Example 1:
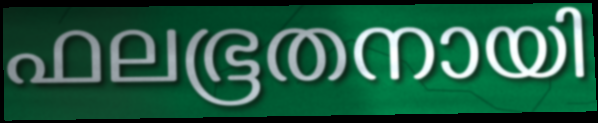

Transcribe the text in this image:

ഫലഭൂതനായി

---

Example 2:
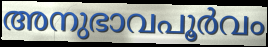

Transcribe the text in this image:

അനുഭാവപൂർവം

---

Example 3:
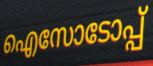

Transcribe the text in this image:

ഐസോടോപ്പ്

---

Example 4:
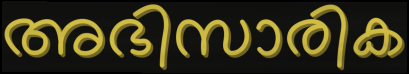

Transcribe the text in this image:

അഭിസാരിക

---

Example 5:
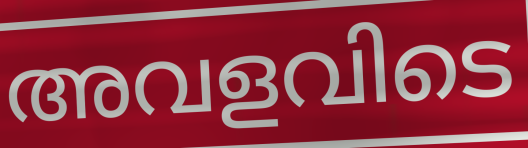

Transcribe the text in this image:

അവളവിടെ